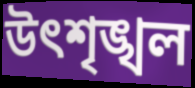
উৎশৃঙ্খল